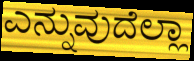
ಎನ್ನುವುದೆಲ್ಲಾ